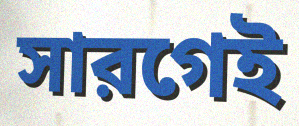
সারগেই